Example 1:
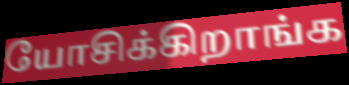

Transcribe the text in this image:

யோசிக்கிறாங்க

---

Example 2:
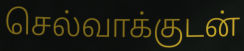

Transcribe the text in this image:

செல்வாக்குடன்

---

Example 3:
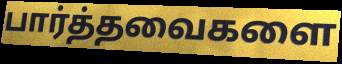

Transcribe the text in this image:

பார்த்தவைகளை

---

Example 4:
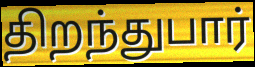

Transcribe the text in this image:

திறந்துபார்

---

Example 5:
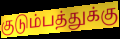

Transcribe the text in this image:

குடும்பத்துக்கு